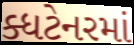
ક્ધટેનરમાં